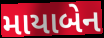
માયાબેન